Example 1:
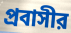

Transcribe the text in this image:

প্রবাসীর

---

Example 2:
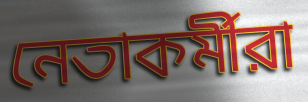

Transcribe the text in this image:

নেতাকর্মীরা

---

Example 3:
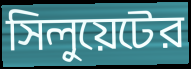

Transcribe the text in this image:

সিলুয়েটের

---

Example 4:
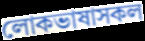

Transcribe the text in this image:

লোকভাষাসকল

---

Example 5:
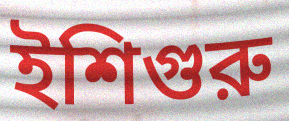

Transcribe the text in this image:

ইশিগুরু